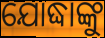
ଯୋଦ୍ଧାଙ୍କୁ